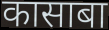
कासाबा